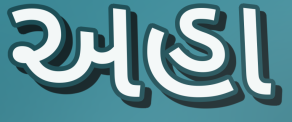
અહા